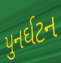
પુનર્ઘટન